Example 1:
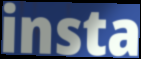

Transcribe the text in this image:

insta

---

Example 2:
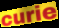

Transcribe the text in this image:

curie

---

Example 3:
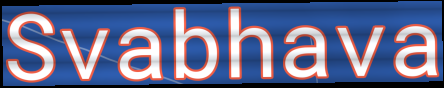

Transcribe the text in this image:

Svabhava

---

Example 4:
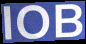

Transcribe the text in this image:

IOB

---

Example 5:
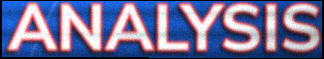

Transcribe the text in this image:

ANALYSIS